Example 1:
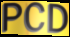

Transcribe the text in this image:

PCD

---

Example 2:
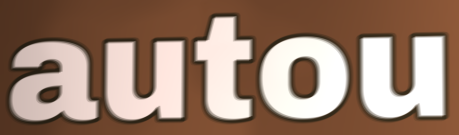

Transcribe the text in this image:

autou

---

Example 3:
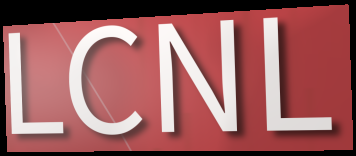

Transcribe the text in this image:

LCNL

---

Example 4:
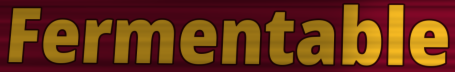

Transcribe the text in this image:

Fermentable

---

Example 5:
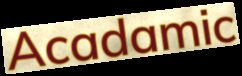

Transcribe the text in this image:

Acadamic